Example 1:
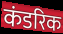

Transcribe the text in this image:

कंडरिक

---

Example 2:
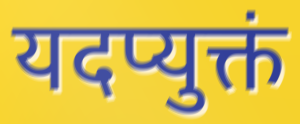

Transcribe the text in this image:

यदप्युक्तं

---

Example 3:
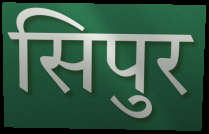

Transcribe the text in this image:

सिपुर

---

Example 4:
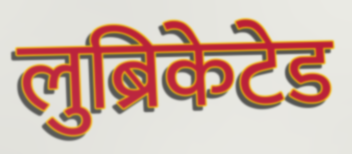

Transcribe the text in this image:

लुब्रिकेटेड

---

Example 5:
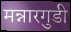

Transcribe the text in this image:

मन्नारगुडी